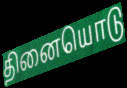
தினையொடு